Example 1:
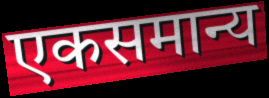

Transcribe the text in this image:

एकसमान्य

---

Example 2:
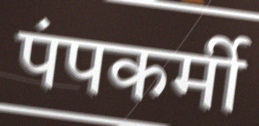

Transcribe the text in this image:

पंपकर्मी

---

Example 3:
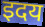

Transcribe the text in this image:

इदय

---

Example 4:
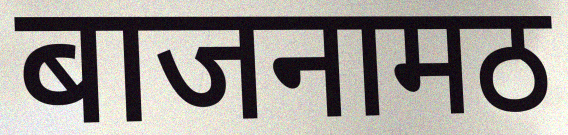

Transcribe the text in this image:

बाजनामठ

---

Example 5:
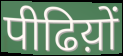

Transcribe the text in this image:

पीढिय़ों